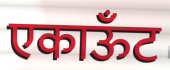
एकाऊँट